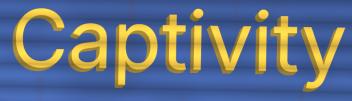
Captivity